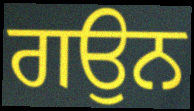
ਗਉਨ